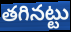
తగినట్టు